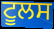
ਟੂਲਸ